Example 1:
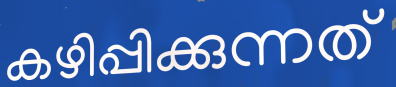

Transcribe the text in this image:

കഴിപ്പിക്കുന്നത്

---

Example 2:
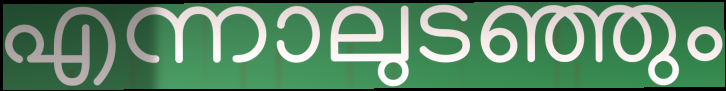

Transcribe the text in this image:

എന്നാലുടഞ്ഞും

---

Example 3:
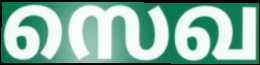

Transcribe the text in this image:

സെഖ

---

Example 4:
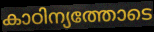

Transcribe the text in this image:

കാഠിന്യത്തോടെ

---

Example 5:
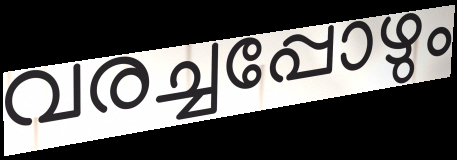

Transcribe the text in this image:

വരച്ചപ്പോഴും